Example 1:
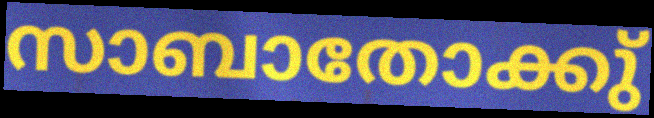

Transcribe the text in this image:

സാബാതോക്കു്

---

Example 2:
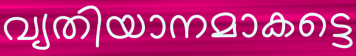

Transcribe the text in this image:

വ്യതിയാനമാകട്ടെ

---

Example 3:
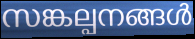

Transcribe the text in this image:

സങ്കല്പനങ്ങൾ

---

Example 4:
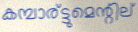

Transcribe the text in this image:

കമ്പാര്ട്ടുമെന്റില്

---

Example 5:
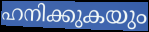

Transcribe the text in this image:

ഹനിക്കുകയും